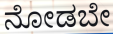
ನೋಡಬೇ